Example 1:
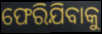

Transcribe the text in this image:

ଫେରିଯିବାକୁ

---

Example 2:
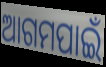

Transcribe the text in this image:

ଆଗମପାଇଁ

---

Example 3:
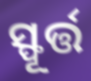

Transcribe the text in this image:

ସ୍ଫୂର୍ତ୍ତ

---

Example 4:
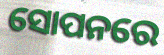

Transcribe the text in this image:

ସୋପନରେ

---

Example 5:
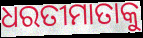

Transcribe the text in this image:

ଧରତୀମାତାକୁ